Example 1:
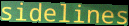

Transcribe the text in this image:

sidelines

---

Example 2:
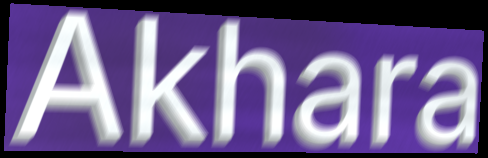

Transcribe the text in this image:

Akhara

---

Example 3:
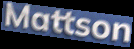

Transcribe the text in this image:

Mattson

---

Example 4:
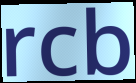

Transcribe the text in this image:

rcb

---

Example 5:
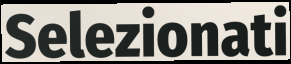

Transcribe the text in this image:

Selezionati